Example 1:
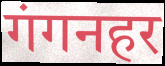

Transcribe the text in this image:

गंगनहर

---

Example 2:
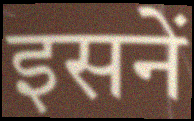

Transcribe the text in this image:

इसनें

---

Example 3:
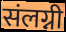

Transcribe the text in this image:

संलग्नी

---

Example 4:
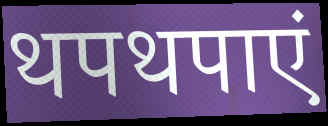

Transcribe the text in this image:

थपथपाएं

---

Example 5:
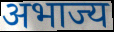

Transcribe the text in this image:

अभाज्य